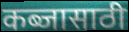
कब्जासाठी